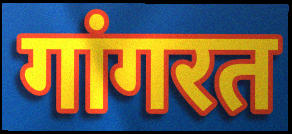
गांगरत